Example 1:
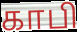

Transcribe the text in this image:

காபி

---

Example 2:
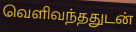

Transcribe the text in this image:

வெளிவந்ததுடன்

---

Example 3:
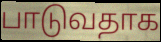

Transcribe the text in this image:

பாடுவதாக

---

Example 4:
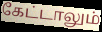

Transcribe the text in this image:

கேட்டாலும்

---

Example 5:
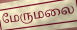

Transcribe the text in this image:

மேருமலை